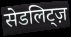
सेडलिट्ज़